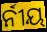
ର୍ନୀୟ